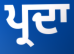
ਪ੍ਰਦਾ